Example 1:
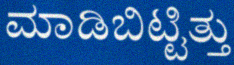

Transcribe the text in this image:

ಮಾಡಿಬಿಟ್ಟಿತ್ತು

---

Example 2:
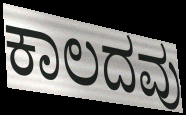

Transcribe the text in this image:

ಕಾಲದವು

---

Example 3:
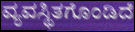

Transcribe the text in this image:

ವ್ಯವಸ್ಥಿತಗೊಂಡಿದೆ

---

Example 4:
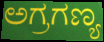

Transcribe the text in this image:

ಅಗ್ರಗಣ್ಯ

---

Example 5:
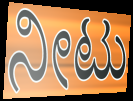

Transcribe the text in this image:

ನೀಟು